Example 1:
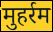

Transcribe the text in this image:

मुहर्रम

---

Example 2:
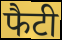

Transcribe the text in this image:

फैटी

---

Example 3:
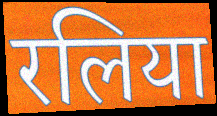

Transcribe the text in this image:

रलिया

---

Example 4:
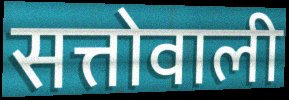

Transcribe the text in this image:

सत्तोवाली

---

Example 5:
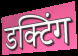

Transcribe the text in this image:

डक्टिंग